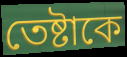
তেষ্টাকে